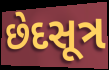
છેદસૂત્ર